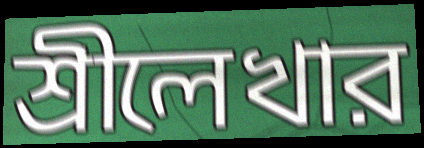
শ্রীলেখার